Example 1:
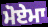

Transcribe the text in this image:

ਮੋਏਮਾ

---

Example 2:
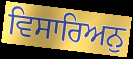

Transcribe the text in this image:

ਵਿਸਾਰਿਅਨੁ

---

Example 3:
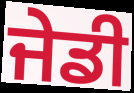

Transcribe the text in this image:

ਜੇਡੀ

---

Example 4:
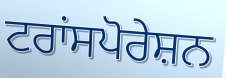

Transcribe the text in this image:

ਟਰਾਂਸਪੋਰੇਸ਼ਨ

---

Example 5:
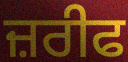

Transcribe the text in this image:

ਜ਼ਰੀਫ